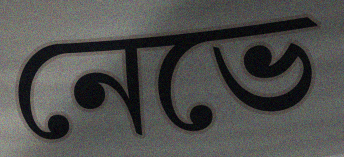
নেভে